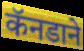
कॅनडाने